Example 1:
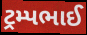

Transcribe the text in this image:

ટ્રમ્પભાઈ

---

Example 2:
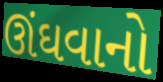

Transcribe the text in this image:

ઊંઘવાનો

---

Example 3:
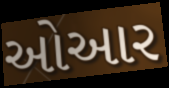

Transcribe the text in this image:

ઓઆર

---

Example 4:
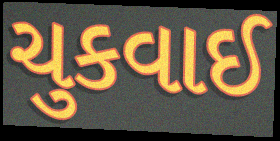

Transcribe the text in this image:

ચુકવાઈ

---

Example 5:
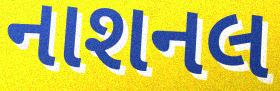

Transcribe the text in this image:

નાશનલ